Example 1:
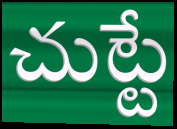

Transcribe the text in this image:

చుట్టే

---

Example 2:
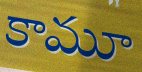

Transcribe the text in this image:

కామూ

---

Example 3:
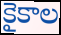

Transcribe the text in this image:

కైకాల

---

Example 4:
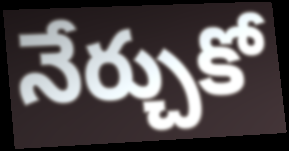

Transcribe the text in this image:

నేర్చుకో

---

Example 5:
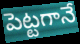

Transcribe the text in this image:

పెట్టగానే